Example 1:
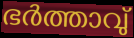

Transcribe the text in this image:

ഭർത്താവു്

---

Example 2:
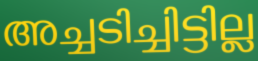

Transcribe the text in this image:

അച്ചടിച്ചിട്ടില്ല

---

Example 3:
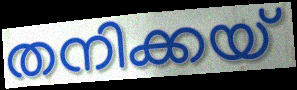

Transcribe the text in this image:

തനിക്കയ്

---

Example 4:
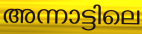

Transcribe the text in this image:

അന്നാട്ടിലെ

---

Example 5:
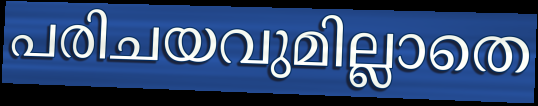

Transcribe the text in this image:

പരിചയവുമില്ലാതെ